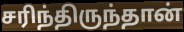
சரிந்திருந்தான்